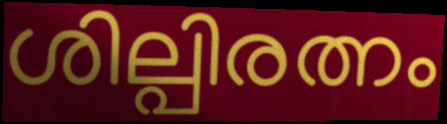
ശില്പിരത്നം